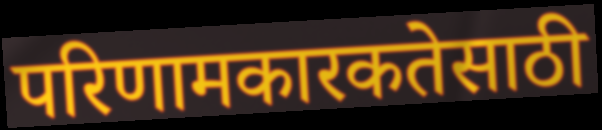
परिणामकारकतेसाठी